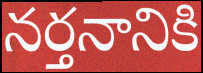
నర్తనానికి